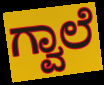
ಗ್ವಾಲೆ